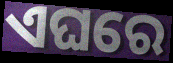
ଏଘରେ